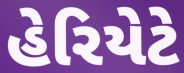
હેરિયેટે